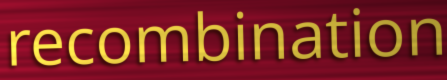
recombination